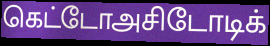
கெட்டோஅசிடோடிக்